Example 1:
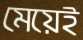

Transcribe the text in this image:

মেয়েই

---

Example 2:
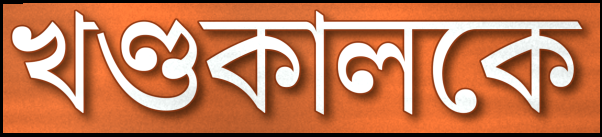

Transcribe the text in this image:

খণ্ডকালকে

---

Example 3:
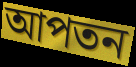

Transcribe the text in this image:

আপতন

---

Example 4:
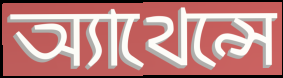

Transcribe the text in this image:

অ্যাথেন্সে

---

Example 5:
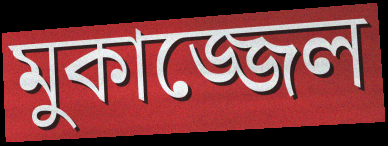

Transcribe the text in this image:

মুকাজ্জেল